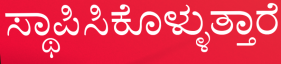
ಸ್ಥಾಪಿಸಿಕೊಳ್ಳುತ್ತಾರೆ